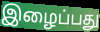
இழைப்பது